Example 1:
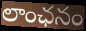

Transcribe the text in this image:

లాంఛనం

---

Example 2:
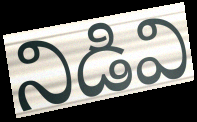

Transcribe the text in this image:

నిడివి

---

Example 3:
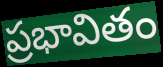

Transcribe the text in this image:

ప్రభావితం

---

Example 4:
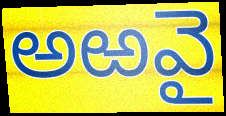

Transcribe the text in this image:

అఱవై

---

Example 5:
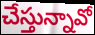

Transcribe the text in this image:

చేస్తున్నావో